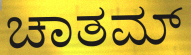
ಚಾತಮ್